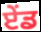
ਏੰਡ